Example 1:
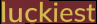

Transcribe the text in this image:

luckiest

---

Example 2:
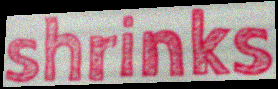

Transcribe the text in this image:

shrinks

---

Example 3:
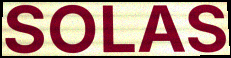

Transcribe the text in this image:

SOLAS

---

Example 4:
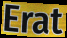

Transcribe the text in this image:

Erat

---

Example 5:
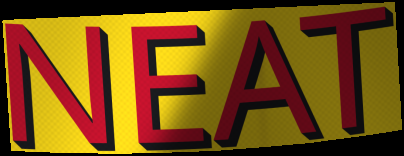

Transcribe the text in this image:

NEAT